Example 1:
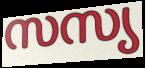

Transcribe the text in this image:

സസ്യ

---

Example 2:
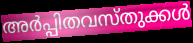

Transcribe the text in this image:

അർപ്പിതവസ്തുക്കൾ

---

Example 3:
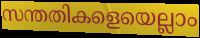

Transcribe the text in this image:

സന്തതികളെയെല്ലാം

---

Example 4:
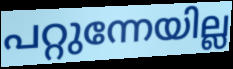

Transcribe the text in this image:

പറ്റുന്നേയില്ല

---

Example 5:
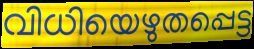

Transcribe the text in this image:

വിധിയെഴുതപ്പെട്ട